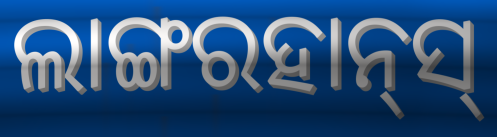
ଲାଙ୍ଗରହାନ୍‌ସ୍